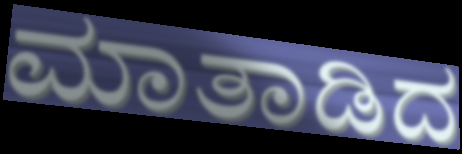
ಮಾತಾಡಿದ